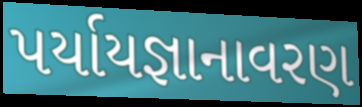
પર્યાયજ્ઞાનાવરણ